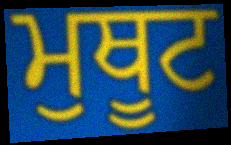
ਮੁਥੂਟ